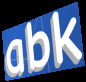
abk